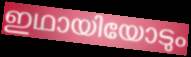
ഇഥായിയോടും